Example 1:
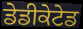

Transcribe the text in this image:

ਡੇਡੀਕੇਟੇਡ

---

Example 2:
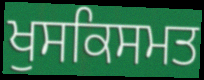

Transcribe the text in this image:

ਖੁਸਕਿਸਮਤ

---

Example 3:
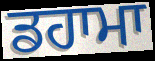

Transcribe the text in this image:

ਡਹਾਮਾ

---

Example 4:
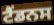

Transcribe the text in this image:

ਟੈਂਡਨਸ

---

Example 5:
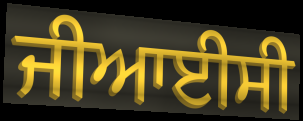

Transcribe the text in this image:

ਜੀਆਈਸੀ